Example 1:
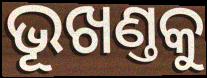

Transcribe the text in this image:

ଭୂଖଣ୍ତକୁ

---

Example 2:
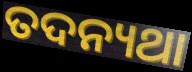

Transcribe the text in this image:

ତଦନ୍ୟଥା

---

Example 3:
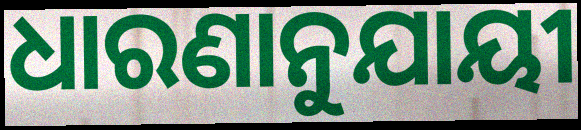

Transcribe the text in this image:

ଧାରଣାନୁଯାୟୀ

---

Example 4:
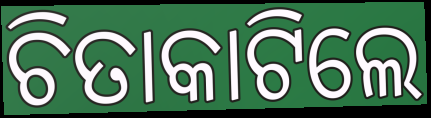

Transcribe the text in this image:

ଚିତାକାଟିଲେ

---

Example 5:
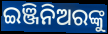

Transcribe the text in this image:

ଇଞ୍ଜିନିଅରଙ୍କୁ